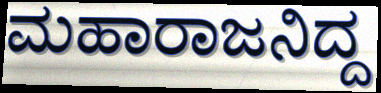
ಮಹಾರಾಜನಿದ್ದ